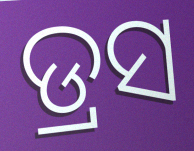
ଡ୍ରସ